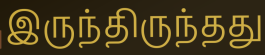
இருந்திருந்தது